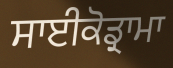
ਸਾਈਕੋਡ੍ਰਾਮਾ